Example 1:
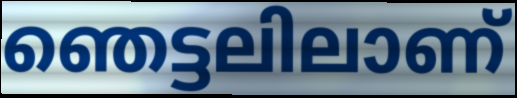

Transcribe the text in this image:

ഞെട്ടലിലാണ്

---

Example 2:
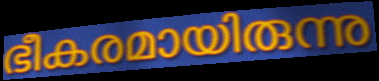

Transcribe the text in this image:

ഭീകരമായിരുന്നു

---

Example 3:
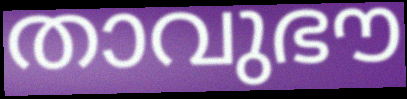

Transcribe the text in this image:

താവുഭൗ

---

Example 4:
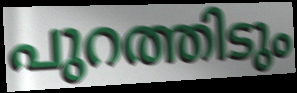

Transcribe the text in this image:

പുറത്തിടും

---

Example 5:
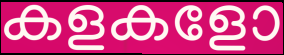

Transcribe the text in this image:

കളകളോ